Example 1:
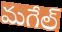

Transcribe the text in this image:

మగేల్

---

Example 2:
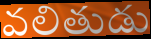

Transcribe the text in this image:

వలితుడు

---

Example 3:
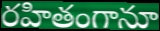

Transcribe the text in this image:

రహితంగానూ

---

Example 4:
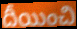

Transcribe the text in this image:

దీయించి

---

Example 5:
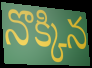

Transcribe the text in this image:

నొక్కిన